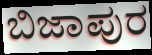
ಬಿಜಾಪುರ